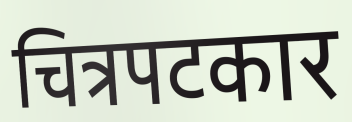
चित्रपटकार